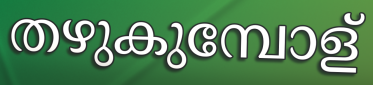
തഴുകുമ്പോള്